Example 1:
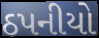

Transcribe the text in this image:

ઠપનીયો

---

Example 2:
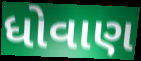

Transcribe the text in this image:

ધોવાણ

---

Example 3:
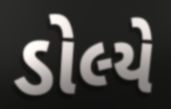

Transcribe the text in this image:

ડોલ્યે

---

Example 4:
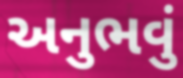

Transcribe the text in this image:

અનુભવું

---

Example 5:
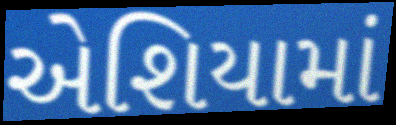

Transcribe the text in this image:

એશિયામાં